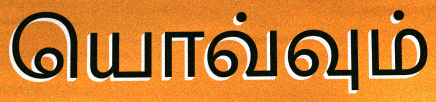
யொவ்வும்